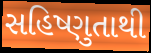
સહિષ્ણુતાથી